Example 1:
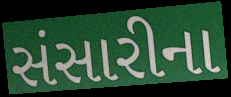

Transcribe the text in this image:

સંસારીના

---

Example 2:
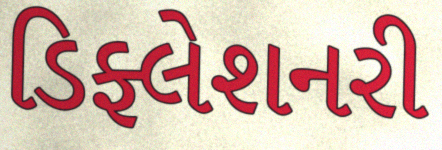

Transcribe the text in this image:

ડિફ્લેશનરી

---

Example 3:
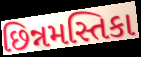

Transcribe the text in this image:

છિન્નમસ્તિકા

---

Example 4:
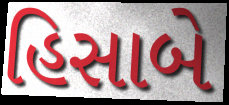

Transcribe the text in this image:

હિસાબે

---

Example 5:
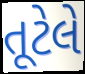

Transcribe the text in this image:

તૂટેલે